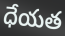
ధేయత